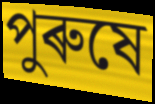
পুৰুষে